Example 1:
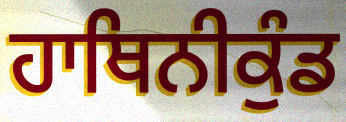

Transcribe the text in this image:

ਹਾਥਿਨੀਕੁੰਡ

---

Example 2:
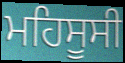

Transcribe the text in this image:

ਮਹਿਸੂਸੀ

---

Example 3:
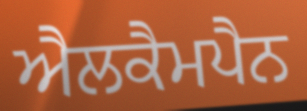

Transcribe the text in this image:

ਐਲਕੈਮਪੈਨ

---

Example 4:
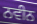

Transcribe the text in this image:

ਨਵੀਨ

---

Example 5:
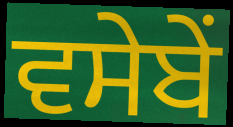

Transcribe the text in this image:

ਵਸੇਬੇਂ